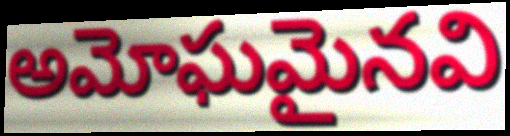
అమోఘమైనవి